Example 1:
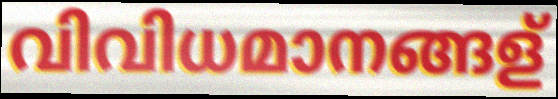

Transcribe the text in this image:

വിവിധമാനങ്ങള്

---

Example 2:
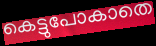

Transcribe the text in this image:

കെട്ടുപോകാതെ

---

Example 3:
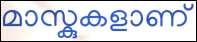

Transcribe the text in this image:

മാസ്കുകളാണ്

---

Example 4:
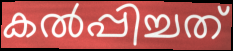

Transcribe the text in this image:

കൽപ്പിച്ചത്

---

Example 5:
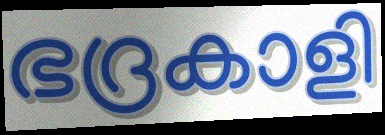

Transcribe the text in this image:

ഭദ്രകാളി